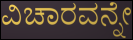
ವಿಚಾರವನ್ನೇ